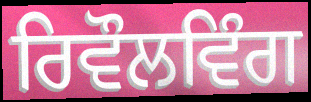
ਰਿਵੌਲਵਿੰਗ